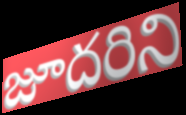
జూదరిని